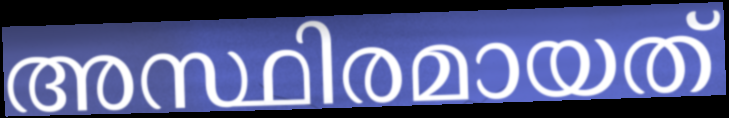
അസ്ഥിരമായത്